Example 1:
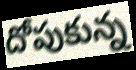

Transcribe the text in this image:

దోపుకున్న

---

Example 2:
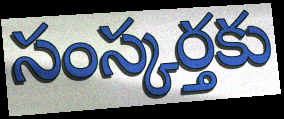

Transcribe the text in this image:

సంస్కర్తకు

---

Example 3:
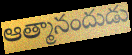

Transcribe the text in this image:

ఆత్మానందుడు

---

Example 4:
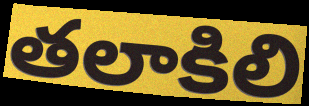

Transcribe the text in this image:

తలాకిలి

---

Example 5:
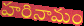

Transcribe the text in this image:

హరినామం